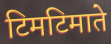
टिमटिमाते